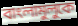
বাংলামুলুকে